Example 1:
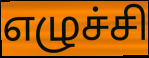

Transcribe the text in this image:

எழுச்சி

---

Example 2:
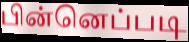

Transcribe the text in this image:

பின்னெப்படி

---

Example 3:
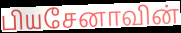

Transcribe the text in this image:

பியசேனாவின்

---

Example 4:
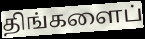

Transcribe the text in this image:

திங்களைப்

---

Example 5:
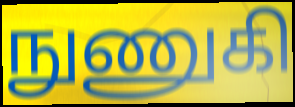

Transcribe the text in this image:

நுணுகி